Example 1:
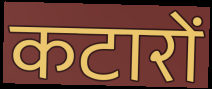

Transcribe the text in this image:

कटारों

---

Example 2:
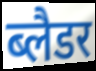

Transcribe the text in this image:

ब्लैडर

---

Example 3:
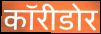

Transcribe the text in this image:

कॉरीडोर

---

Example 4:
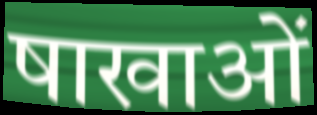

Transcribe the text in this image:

षाखाओं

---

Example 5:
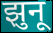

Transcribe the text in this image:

झुनू